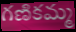
గణికమ్మ